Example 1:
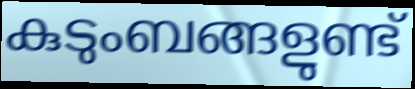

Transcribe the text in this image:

കുടുംബങ്ങളുണ്ട്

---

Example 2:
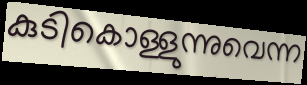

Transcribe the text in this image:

കുടികൊള്ളുന്നുവെന്ന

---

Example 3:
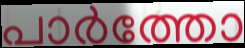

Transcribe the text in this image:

പാർത്തോ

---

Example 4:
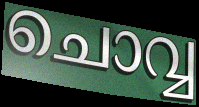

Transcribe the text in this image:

ചൊവ്വ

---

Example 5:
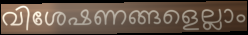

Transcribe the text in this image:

വിശേഷണങ്ങളെല്ലാം